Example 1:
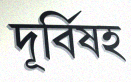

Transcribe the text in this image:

দূর্বিষহ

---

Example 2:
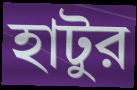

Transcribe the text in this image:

হাটুর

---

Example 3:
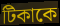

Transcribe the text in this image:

টিকাকে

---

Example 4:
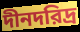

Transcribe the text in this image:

দীনদরিদ্র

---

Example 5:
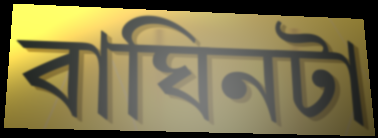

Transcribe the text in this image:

বাঘিনটা